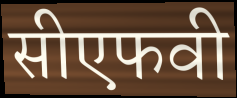
सीएफवी